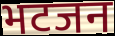
भटजन